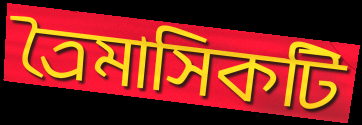
ত্রৈমাসিকটি